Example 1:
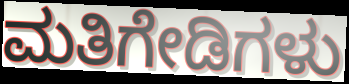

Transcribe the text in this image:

ಮತಿಗೇಡಿಗಳು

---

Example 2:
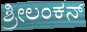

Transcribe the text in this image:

ಶ್ರೀಲಂಕನ್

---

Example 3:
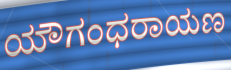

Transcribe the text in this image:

ಯೌಗಂಧರಾಯಣ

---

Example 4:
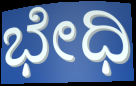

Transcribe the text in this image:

ಭೇಧಿ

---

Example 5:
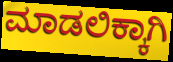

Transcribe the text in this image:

ಮಾಡಲಿಕ್ಕಾಗಿ